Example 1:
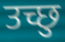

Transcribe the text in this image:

उच्छु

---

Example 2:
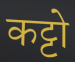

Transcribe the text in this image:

कट्टो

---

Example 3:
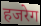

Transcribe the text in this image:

हजरेग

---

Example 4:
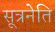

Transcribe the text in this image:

सूत्रनेति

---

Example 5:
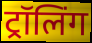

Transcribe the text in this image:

ट्रॉलिंग